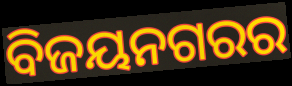
ବିଜୟନଗରର